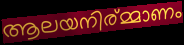
ആലയനിര്മ്മാണം